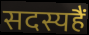
सदस्यहैं